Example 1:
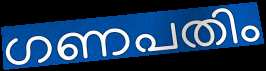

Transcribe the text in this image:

ഗണപതിം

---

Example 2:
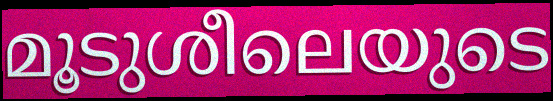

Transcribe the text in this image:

മൂടുശീലെയുടെ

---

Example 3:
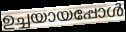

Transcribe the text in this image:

ഉച്ചയായപ്പോൾ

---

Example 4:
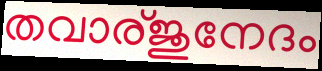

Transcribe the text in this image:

തവാര്ജുനേദം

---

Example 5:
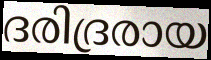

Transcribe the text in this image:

ദരിദ്രരായ